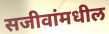
सजीवांमधील